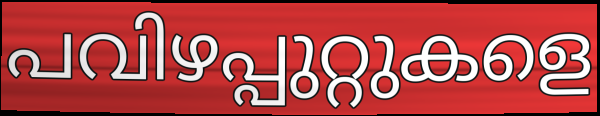
പവിഴപ്പുറ്റുകളെ